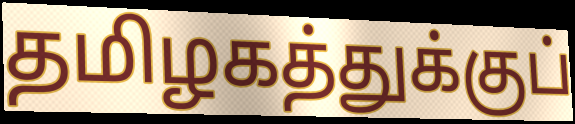
தமிழகத்துக்குப்